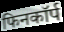
फिनकॉर्प